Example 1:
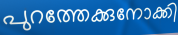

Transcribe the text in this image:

പുറത്തേക്കുനോക്കി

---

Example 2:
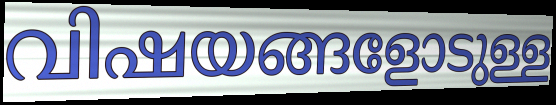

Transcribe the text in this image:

വിഷയങ്ങളോടുള്ള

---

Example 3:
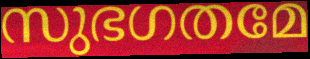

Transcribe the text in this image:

സുഭഗതമേ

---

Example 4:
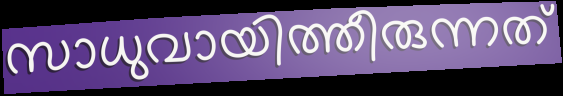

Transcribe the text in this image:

സാധുവായിത്തീരുന്നത്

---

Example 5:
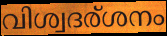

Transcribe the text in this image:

വിശ്വദര്ശനം